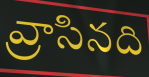
వ్రాసినది